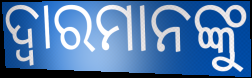
ଦ୍ୱାରମାନଙ୍କୁ